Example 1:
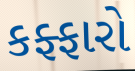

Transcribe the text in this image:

કફ્ફારો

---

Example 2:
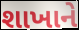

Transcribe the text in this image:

શાખાને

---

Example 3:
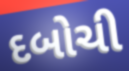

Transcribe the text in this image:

દબોચી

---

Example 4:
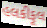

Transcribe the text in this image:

હલકીફૂલ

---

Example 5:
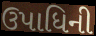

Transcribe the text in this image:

ઉપાધિની